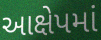
આક્ષેપમાં